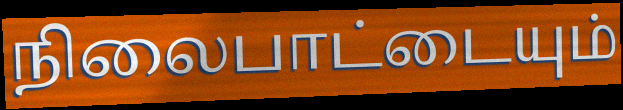
நிலைபாட்டையும்